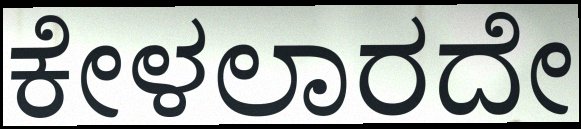
ಕೇಳಲಾರದೇ